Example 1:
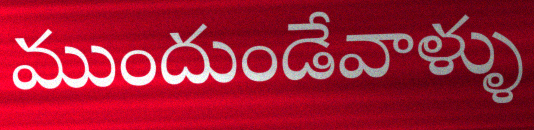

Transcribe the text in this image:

ముందుండేవాళ్ళు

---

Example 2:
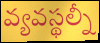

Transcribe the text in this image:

వ్యవస్థల్నీ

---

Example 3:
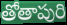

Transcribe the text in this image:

తోతాపురి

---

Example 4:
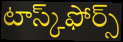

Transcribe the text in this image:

టాస్క్‌ఫోర్స్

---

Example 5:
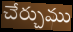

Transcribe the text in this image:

చేర్చుము